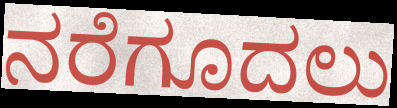
ನರೆಗೂದಲು